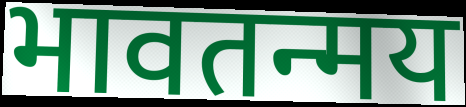
भावतन्मय